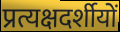
प्रत्यक्षदर्शीयों